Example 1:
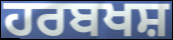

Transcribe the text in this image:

ਹਰਬਖਸ਼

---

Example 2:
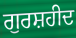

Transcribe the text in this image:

ਗੁਰਸ਼ਹੀਦ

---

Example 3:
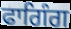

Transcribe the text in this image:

ਫਾਗਿੰਗ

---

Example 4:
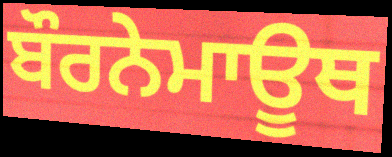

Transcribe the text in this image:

ਬੌਰਨੇਮਾਊਥ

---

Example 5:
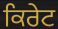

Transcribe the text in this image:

ਕਿਰੇਟ